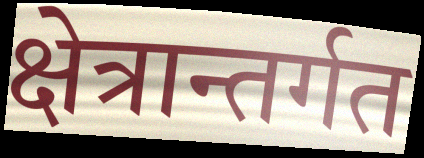
क्षेत्रान्‍तर्गत